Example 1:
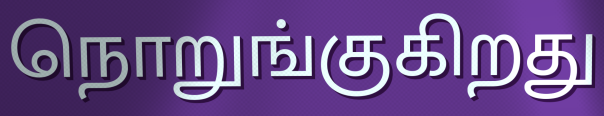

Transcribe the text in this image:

நொறுங்குகிறது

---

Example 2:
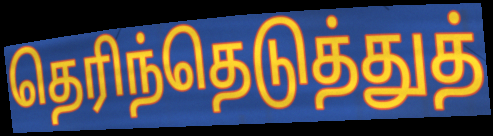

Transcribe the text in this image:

தெரிந்தெடுத்துத்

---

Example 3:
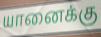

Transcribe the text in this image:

யானைக்கு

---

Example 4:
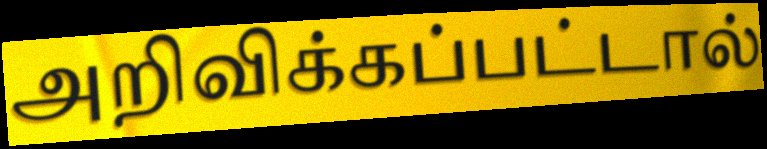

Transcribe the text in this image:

அறிவிக்கப்பட்டால்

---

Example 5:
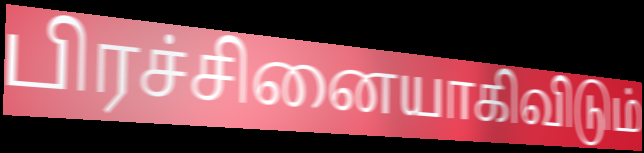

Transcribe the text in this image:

பிரச்சினையாகிவிடும்